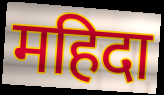
महिदा